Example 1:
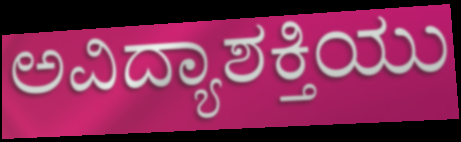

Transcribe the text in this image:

ಅವಿದ್ಯಾಶಕ್ತಿಯು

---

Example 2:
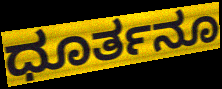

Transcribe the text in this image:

ಧೂರ್ತನೂ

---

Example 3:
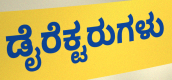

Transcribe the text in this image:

ಡೈರೆಕ್ಟರುಗಳು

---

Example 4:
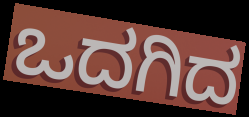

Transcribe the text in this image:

ಒದಗಿದ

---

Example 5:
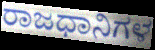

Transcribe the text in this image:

ರಾಜಧಾನಿಗಳ